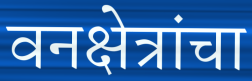
वनक्षेत्रांचा